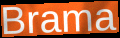
Brama